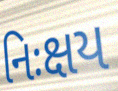
નિઃક્ષય